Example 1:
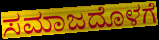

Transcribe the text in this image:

ಸಮಾಜದೊಳಗೆ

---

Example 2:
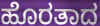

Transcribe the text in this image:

ಹೊರತಾದ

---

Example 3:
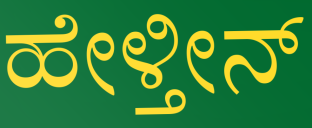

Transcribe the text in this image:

ಹೇಳ್ತೀನ್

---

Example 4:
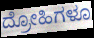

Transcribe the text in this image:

ದ್ರೋಹಿಗಳೂ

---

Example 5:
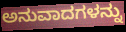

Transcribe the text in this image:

ಅನುವಾದಗಳನ್ನು